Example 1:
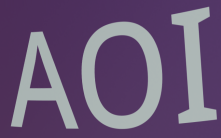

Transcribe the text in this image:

AOI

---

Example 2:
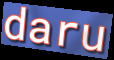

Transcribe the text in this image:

daru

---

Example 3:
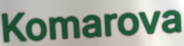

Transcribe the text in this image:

Komarova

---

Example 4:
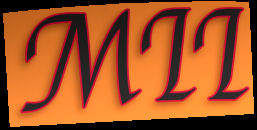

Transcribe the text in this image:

MII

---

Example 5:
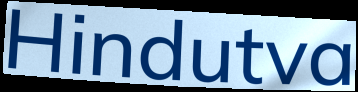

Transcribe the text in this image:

Hindutva